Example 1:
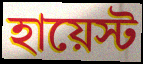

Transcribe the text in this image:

হায়েস্ট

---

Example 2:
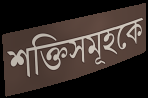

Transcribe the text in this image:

শক্তিসমূহকে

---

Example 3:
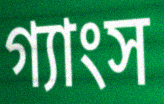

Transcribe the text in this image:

গ্যাংস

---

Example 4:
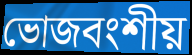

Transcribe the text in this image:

ভোজবংশীয়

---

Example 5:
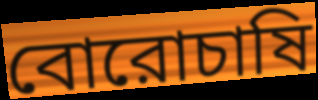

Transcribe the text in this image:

বোরোচাষি